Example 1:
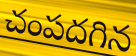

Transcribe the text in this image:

చంపదగిన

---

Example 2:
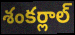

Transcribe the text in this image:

శంకర్లాల్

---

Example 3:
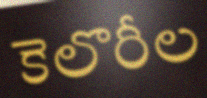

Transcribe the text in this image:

కెలొరీల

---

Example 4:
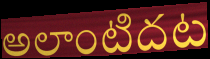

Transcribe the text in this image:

అలాంటిదట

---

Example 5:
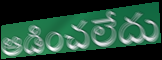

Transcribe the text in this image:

ఆడించలేదు